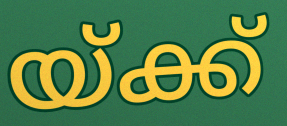
യ്ക്ക്